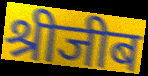
श्रीजीब